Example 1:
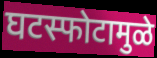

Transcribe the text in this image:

घटस्फोटामुळे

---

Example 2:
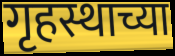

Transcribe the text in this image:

गृहस्थाच्या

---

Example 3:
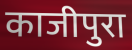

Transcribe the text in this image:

काजीपुरा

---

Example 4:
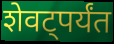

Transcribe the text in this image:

शेवट्पर्यंत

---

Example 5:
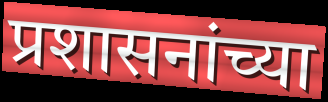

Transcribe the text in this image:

प्रशासनांच्या